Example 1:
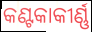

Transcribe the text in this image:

କଣ୍ଟକାକୀର୍ଣ୍ଣ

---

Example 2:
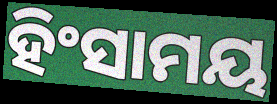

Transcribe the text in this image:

ହିଂସାମୟ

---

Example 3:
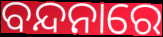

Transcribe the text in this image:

ବନ୍ଦନାରେ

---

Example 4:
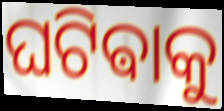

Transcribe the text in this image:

ଘଟିଵାକୁ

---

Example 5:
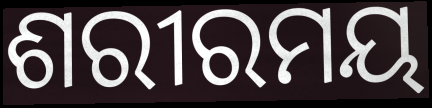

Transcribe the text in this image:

ଶରୀରମୟ